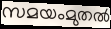
സമയംമുതൽ